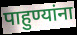
पाहुण्यांना